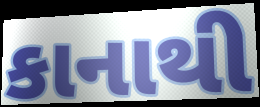
કાનાથી